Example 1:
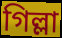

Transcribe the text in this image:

গিল্লা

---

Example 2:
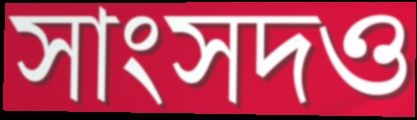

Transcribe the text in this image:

সাংসদও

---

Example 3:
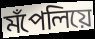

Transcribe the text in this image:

মঁপেলিয়ে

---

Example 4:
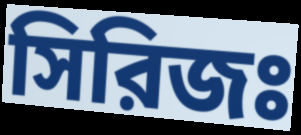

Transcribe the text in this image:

সিরিজঃ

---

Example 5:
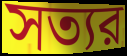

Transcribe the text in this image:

সত্যর